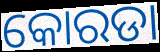
କୋରଡା